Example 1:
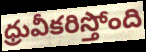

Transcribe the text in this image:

ధ్రువీకరిస్తోంది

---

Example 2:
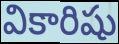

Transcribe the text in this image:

వికారిషు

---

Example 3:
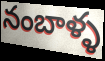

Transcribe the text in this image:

నంబాళ్ళ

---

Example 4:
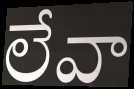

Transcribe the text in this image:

లేవా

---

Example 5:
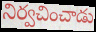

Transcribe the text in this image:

నిర్వచించాడు